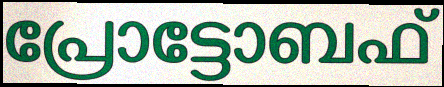
പ്രോട്ടോബഫ്